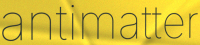
antimatter